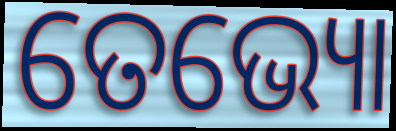
ତେଭ୍ୟୋ